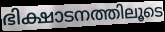
ഭിക്ഷാടനത്തിലൂടെ